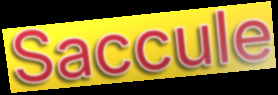
Saccule